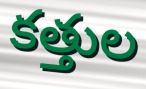
కత్తుల